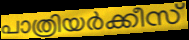
പാത്രിയർക്കീസ്